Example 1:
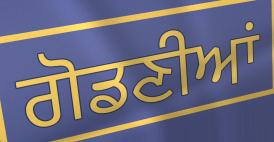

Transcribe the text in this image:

ਗੋਡਣੀਆਂ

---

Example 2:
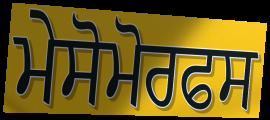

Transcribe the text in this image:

ਮੇਸੋਮੋਰਫਸ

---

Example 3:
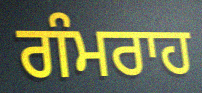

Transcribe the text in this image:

ਗੰਮਰਾਹ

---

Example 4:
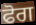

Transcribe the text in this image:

ਫੋਗ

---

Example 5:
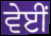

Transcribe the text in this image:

ਵੇਈਂ